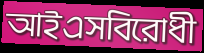
আইএসবিরোধী